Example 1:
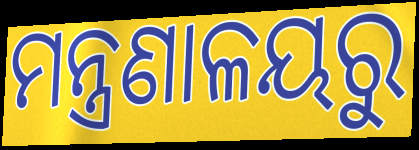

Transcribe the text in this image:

ମନ୍ତ୍ରଣାଳୟରୁ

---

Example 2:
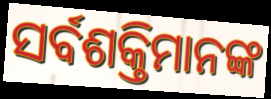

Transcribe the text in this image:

ସର୍ବଶକ୍ତିମାନଙ୍କ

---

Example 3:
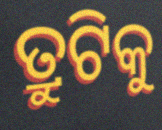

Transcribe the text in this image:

ତ୍ରୁଟିକୁ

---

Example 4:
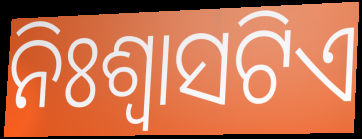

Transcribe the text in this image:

ନିଃଶ୍ୱାସଟିଏ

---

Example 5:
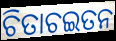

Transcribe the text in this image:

ଚିତାଚଇତନ